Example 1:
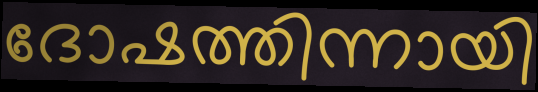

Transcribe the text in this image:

ദോഷത്തിന്നായി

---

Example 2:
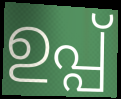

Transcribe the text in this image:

ഉപ്പ്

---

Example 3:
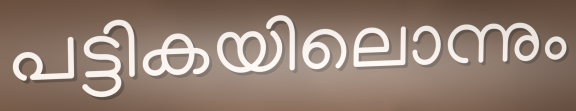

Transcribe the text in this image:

പട്ടികയിലൊന്നും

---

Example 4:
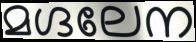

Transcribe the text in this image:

മഗ്ദലേന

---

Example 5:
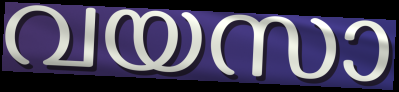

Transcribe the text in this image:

വയസാ